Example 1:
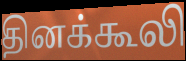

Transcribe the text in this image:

தினக்கூலி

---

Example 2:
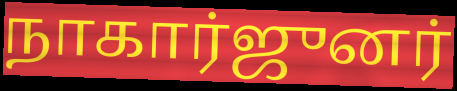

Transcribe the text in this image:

நாகார்ஜுனர்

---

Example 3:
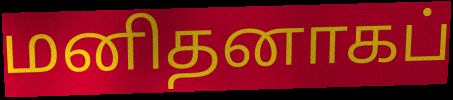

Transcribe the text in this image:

மனிதனாகப்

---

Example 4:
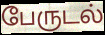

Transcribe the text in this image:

பேருடல்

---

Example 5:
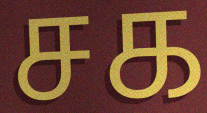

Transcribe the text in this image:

சக